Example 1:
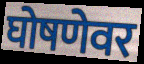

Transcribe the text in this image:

घोषणेवर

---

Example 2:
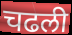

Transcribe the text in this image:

चढली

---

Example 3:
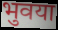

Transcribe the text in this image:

भुवया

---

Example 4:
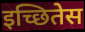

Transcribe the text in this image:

इच्छितेस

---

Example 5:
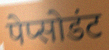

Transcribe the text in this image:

पेप्सोडंट